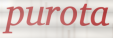
purota